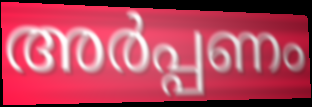
അർപ്പണം